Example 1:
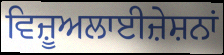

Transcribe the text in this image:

ਵਿਜ਼ੂਅਲਾਈਜ਼ੇਸ਼ਨਾਂ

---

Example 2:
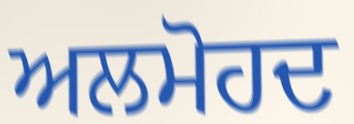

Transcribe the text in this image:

ਅਲਮੋਹਦ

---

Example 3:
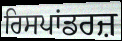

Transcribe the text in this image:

ਰਿਸਪਾਂਡਰਜ਼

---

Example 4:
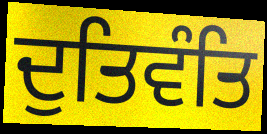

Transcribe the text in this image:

ਦੁਤਿਵੰਤਿ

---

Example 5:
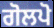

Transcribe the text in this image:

ਗੋਲਪੋ